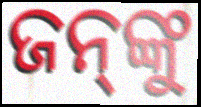
ଜନ୍‍ଙ୍କୁ